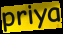
priya